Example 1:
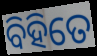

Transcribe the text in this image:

ବିହିତେ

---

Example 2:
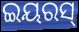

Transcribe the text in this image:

ଇୟରସ୍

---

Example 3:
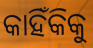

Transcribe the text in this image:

କାହିଁକିକୁ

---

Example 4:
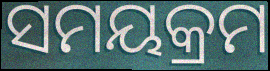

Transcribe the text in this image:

ସମୟକ୍ରମ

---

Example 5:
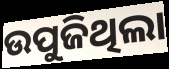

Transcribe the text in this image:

ଉପୁଜିଥିଲା